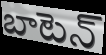
బాటెన్